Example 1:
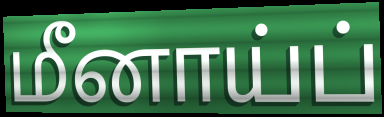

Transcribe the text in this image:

மீனாய்ப்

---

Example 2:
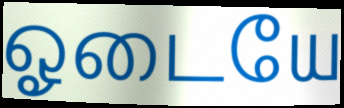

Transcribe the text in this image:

ஓடையே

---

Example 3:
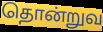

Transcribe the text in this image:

தொன்றுவ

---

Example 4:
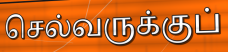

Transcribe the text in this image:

செல்வருக்குப்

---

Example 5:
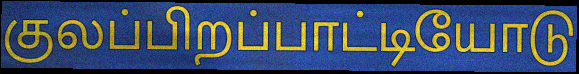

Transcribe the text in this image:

குலப்பிறப்பாட்டியோடு